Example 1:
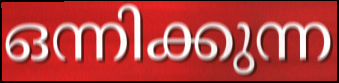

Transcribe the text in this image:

ഒന്നിക്കുന്ന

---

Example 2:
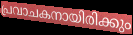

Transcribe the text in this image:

പ്രവാചകനായിരിക്കും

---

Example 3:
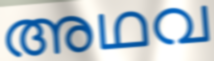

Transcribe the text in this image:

അഥവ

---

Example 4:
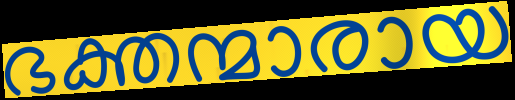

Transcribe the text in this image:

ഭക്തന്മാരായ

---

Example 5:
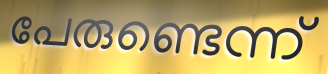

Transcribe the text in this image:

പേരുണ്ടെന്ന്